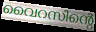
വൈറസിന്റെ